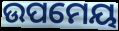
ଉପମେୟ